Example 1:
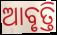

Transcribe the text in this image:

ଆବୃତ୍ତି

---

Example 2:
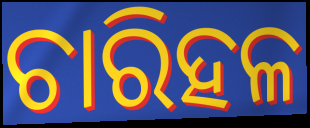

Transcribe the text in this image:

ଚାରିହଳ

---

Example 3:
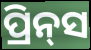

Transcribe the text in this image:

ପ୍ରିନ୍‍ସ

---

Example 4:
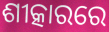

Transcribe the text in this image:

ଶୀତ୍କାରରେ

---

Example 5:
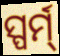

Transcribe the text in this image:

ସ୍ପର୍ମ୍